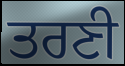
ਤਰਣੀ